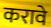
करावे